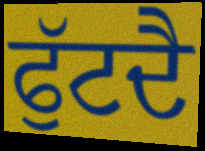
ਫੁੱਟਦੈ